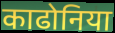
काढोनिया